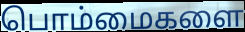
பொம்மைகளை